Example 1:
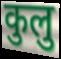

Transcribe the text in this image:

कुलु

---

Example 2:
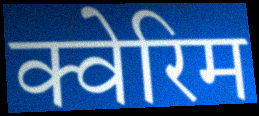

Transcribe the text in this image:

क्वेरिम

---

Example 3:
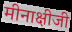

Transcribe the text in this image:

मीनाक्षीजी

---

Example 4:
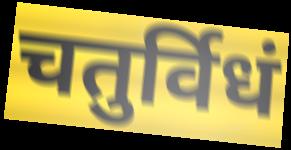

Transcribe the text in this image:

चतुर्विधं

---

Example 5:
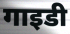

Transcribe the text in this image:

गाइडी